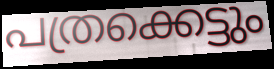
പത്രക്കെട്ടും